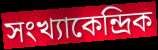
সংখ্যাকেন্দ্রিক